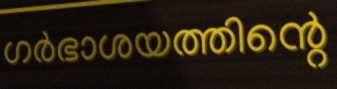
ഗർഭാശയത്തിന്റെ